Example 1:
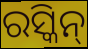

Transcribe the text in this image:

ରସ୍କିନ୍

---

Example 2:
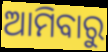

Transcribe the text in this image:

ଆମିବାରୁ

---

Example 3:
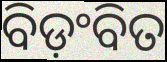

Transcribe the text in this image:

ବିଡ଼ଂବିତ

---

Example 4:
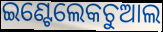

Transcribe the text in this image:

ଇଣ୍ଟେଲେକଚୁଆଲ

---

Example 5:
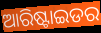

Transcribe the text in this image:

ଆରିଷ୍ଟାଇଡର